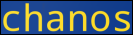
chanos